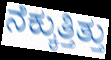
ನೆಕ್ಕುತ್ತಿತ್ತು